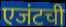
एजंटची